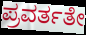
ಪ್ರವರ್ತತೇ